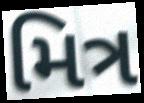
મિત્ર